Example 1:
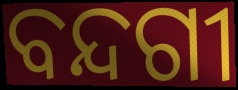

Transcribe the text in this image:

ବନ୍ଦଗୀ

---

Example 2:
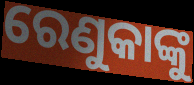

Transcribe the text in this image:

ରେଣୁକାଙ୍କୁ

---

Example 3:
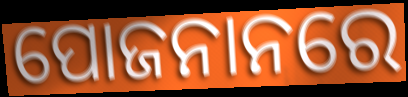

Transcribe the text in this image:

ପୋଜନାନରେ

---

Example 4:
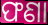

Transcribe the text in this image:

ଫଣା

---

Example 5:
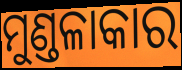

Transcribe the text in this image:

ମୁଣ୍ଡଳାକାର